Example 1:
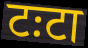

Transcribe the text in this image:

टःटा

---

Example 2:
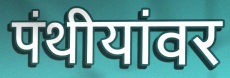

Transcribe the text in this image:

पंथीयांवर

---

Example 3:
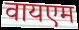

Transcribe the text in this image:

वायएम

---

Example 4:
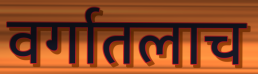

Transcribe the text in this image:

वर्गातलाच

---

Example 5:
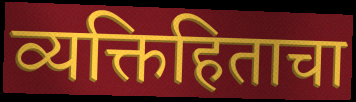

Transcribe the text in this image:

व्यक्तिहिताचा